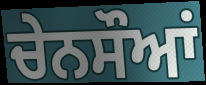
ਚੇਨਸੌਆਂ